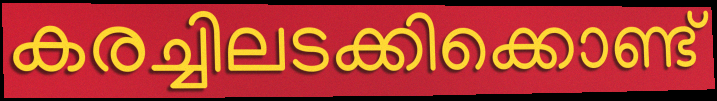
കരച്ചിലടക്കിക്കൊണ്ട്